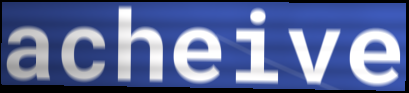
acheive